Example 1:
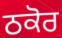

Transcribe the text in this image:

ਠਕੋਰ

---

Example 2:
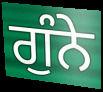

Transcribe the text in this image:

ਗੁੰਨੇ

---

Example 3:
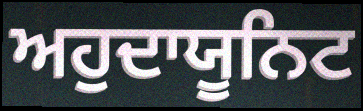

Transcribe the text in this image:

ਅਹੁਦਾਯੂਨਿਟ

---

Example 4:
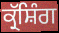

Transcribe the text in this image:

ਕ੍ਰੱਸ਼ਿੰਗ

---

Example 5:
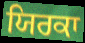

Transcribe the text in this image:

ਯਿਰਕਾ